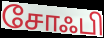
சோஃபி